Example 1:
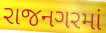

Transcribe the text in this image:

રાજનગરમાં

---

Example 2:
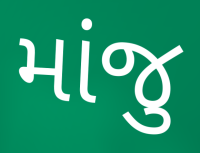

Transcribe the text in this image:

માંજુ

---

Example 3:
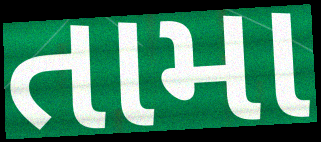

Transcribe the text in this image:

તામા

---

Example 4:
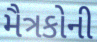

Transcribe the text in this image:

મૈત્રકોની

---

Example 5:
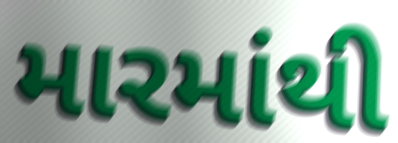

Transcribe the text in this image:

મારમાંથી